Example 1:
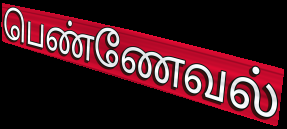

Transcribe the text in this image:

பெண்ணேவல்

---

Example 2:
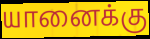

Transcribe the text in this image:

யானைக்கு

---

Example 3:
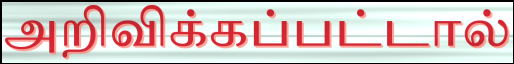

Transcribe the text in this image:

அறிவிக்கப்பட்டால்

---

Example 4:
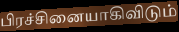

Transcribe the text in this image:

பிரச்சினையாகிவிடும்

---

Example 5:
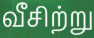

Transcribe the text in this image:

வீசிற்று